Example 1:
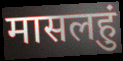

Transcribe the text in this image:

मासलहुं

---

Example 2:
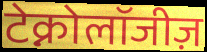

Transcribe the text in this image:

टेक्नोलॉजीज़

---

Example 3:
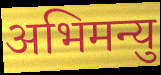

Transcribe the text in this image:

अभिमन्यु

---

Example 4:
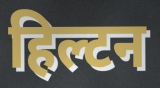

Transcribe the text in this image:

हिल्टन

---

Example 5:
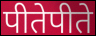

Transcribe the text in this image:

पीतेपीते